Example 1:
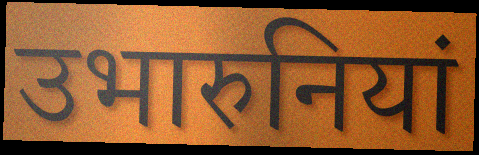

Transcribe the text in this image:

उभारुनियां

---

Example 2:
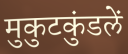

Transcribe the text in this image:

मुकुटकुंडलें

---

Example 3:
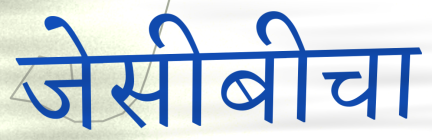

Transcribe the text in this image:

जेसीबीचा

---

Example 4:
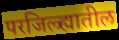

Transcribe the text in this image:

परजिल्ह्यातील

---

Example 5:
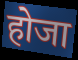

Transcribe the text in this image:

होजा